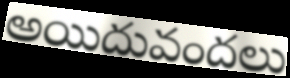
అయిదువందలు